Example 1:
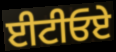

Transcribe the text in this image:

ਈਟੀਓਏ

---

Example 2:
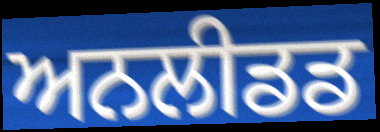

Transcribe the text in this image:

ਅਨਲੀਡਡ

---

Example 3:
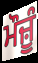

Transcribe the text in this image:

ਮੌਜ਼ੂੰ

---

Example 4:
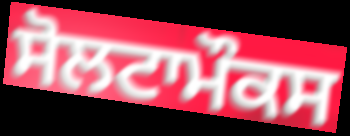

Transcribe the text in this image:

ਸੋਲਟਾਮੌਕਸ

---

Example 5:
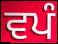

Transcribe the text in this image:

ਵਪੰ